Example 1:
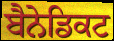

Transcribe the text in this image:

ਬੈਨੇਡਿਕਟ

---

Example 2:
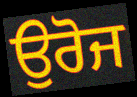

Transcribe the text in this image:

ਉਰੋਜ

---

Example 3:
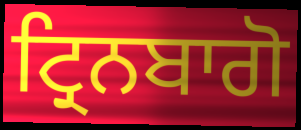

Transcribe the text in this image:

ਟ੍ਰਿਨਬਾਗੋ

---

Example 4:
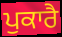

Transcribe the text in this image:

ਪੁਕਾਰੈ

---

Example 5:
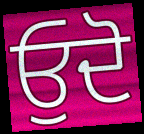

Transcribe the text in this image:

ਓੁਦੋ